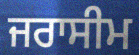
ਜਰਾਸੀਮ